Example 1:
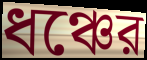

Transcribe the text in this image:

ধঞ্চের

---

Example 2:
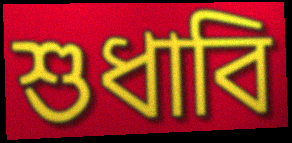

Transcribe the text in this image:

শুধাবি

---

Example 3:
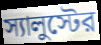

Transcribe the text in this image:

স্যালুস্টের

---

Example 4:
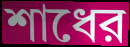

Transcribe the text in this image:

শাধের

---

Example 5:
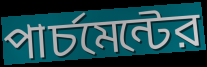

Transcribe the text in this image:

পার্চমেন্টের